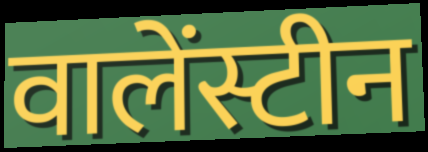
वालेंस्टीन